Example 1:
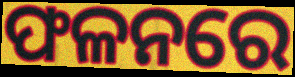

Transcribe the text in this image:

ଫଳନରେ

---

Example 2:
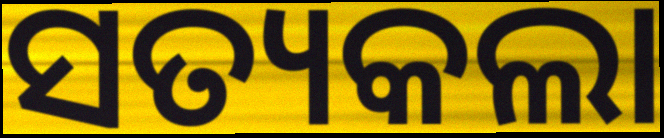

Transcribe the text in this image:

ସତ୍ୟକଲା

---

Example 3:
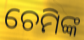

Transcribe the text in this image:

ଚେମିଙ୍କ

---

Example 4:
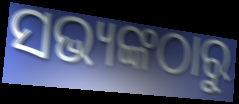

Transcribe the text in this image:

ସଭ୍ୟଙ୍କଠାରୁ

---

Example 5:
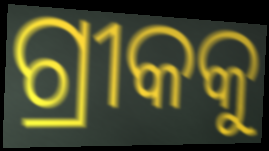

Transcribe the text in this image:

ଗ୍ରୀକକୁ